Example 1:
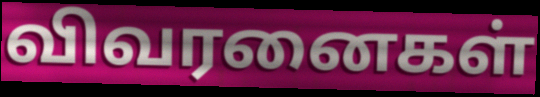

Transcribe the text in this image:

விவரனைகள்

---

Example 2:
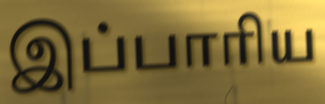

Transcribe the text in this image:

இப்பாரிய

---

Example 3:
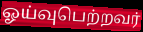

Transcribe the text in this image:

ஓய்வுபெற்றவர்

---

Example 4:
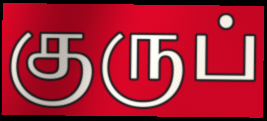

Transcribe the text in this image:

குருப்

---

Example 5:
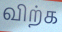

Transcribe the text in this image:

விற்க